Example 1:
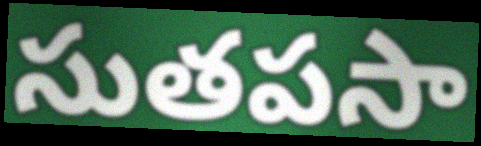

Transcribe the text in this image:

సుతపసా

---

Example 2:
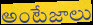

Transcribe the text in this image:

అంటేజాలు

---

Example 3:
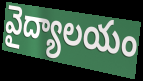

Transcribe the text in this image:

వైద్యాలయం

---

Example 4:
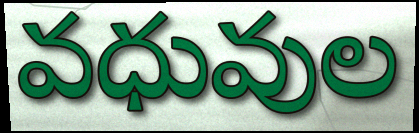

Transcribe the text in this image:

వధువుల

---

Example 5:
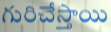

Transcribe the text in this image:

గురిచేస్తాయి